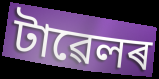
টাৱেলৰ